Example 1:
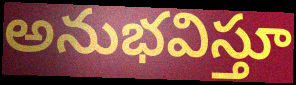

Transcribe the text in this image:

అనుభవిస్తూ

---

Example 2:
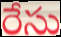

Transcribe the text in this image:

రేసు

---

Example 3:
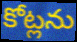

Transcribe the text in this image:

కోట్లను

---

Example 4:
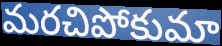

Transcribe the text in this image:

మరచిపోకుమా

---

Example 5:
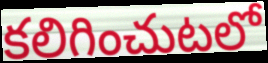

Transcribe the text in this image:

కలిగించుటలో